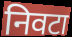
निवटा